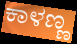
ಕಾಳಣ್ಣ